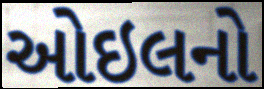
ઓઇલનો